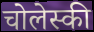
चोलेस्की